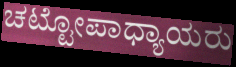
ಚಟ್ಟೋಪಾಧ್ಯಾಯರು